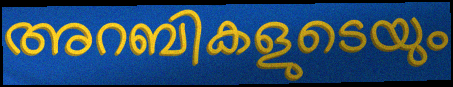
അറബികളുടെയും